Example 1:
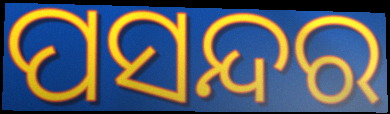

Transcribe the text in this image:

ପସନ୍ଦର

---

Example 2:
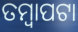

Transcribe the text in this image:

ତମ୍ବାପଟା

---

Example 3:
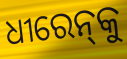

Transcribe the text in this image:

ଧୀରେନ୍‌କୁ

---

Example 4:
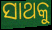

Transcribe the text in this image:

ସାଥକୁ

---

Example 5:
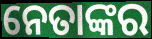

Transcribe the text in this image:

ନେତାଙ୍କର